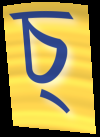
চ্